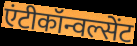
एंटीकॉन्वल्सेंट